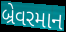
બ્રેવરમાન